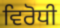
ਵਿਰੋਧੀ